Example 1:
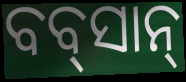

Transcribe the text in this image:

ବବ୍‌ସାନ୍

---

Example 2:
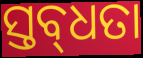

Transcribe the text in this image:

ସ୍ତବ୍‍ଧତା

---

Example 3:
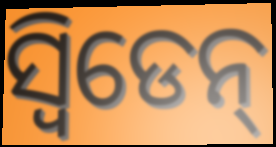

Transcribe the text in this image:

ସ୍ଵିଡେନ୍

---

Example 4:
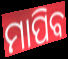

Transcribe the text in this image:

ମାପିବ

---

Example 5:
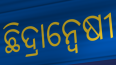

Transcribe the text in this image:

ଛିଦ୍ରାନ୍ୱେଷୀ